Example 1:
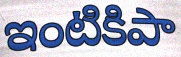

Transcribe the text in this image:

ఇంటికిపా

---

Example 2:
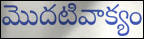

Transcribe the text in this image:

మొదటివాక్యం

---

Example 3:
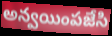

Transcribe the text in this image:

అన్వయింపజేసి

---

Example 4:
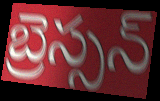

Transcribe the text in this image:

బ్రెస్సన్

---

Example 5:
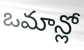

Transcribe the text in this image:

ఒమాన్లో